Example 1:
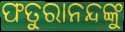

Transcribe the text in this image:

ଫତୁରାନନ୍ଦଙ୍କୁ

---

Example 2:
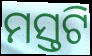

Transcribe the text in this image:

ମସ୍ତଟି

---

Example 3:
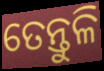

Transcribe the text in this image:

ତେନ୍ତୁଳି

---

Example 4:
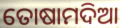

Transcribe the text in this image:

ତୋଷାମଦିଆ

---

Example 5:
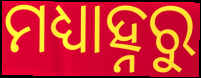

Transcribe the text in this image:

ମଧ୍ୟାହ୍ନରୁ